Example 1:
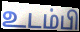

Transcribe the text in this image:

உடம்பி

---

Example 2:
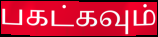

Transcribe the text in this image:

பகட்கவும்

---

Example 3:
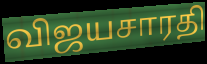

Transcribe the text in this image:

விஜயசாரதி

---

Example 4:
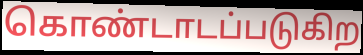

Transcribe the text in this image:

கொண்டாடப்படுகிற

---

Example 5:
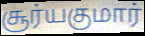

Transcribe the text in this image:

சூர்யகுமார்